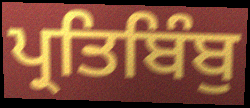
ਪ੍ਰਤਿਬਿੰਬੁ